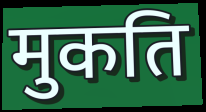
मुकति